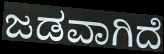
ಜಡವಾಗಿದೆ